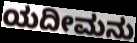
ಯದೀಮನು